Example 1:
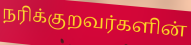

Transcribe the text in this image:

நரிக்குறவர்களின்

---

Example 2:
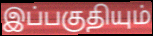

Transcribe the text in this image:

இப்பகுதியும்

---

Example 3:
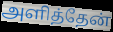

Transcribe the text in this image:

அளித்தேன்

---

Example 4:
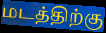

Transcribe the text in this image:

மடத்திற்கு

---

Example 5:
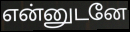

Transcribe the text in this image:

என்னுடனே